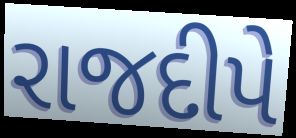
રાજદીપે